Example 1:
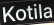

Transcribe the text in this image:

Kotila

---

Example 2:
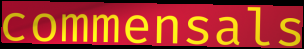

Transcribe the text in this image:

commensals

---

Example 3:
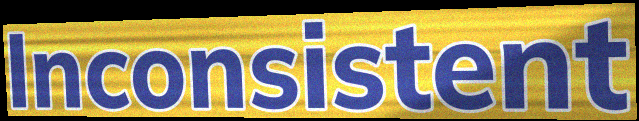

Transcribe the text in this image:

Inconsistent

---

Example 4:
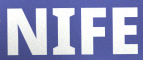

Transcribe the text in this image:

NIFE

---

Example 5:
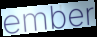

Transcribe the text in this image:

ember